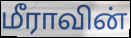
மீராவின்